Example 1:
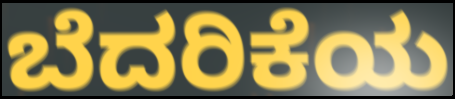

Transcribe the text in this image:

ಬೆದರಿಕೆಯ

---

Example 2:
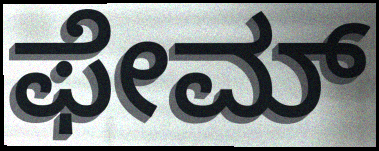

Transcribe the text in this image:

ಫೇಮ್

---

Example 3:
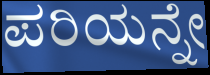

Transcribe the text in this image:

ಪರಿಯನ್ನೇ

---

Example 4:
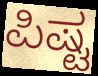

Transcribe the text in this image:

ಪಿಷ್ಟ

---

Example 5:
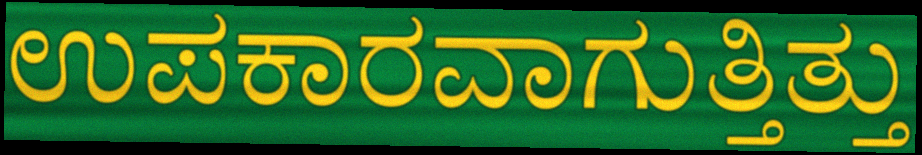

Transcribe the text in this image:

ಉಪಕಾರವಾಗುತ್ತಿತ್ತು